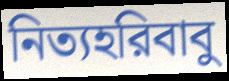
নিত্যহরিবাবু